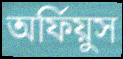
অর্ফিয়ুস